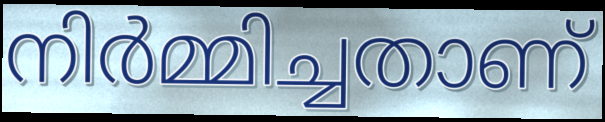
നിർമ്മിച്ചതാണ്